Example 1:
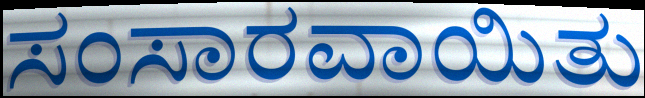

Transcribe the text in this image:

ಸಂಸಾರವಾಯಿತು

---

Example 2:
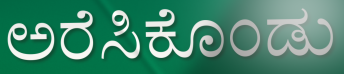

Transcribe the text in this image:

ಅರೆಸಿಕೊಂಡು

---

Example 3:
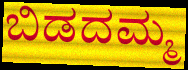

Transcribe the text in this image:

ಬಿಡದಮ್ಮ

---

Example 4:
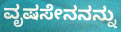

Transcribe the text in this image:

ವೃಷಸೇನನನ್ನು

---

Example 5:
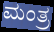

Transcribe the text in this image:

ಮಂತ್ರ